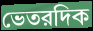
ভেতরদিক